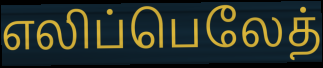
எலிப்பெலேத்